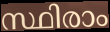
സ്ഥിരാം